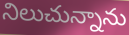
నిలుచున్నాను